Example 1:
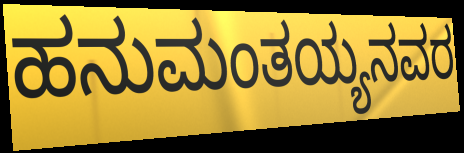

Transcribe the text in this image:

ಹನುಮಂತಯ್ಯನವರ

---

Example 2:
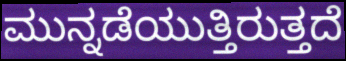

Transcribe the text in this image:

ಮುನ್ನಡೆಯುತ್ತಿರುತ್ತದೆ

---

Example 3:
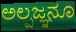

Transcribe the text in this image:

ಅಲ್ಪಜ್ಞನೂ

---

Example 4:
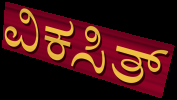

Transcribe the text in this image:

ವಿಕಸಿತ್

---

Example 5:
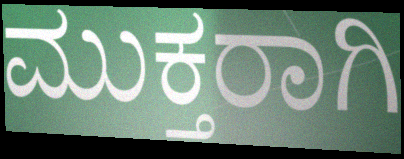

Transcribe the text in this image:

ಮುಕ್ತರಾಗಿ